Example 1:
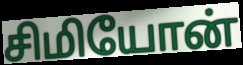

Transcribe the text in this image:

சிமியோன்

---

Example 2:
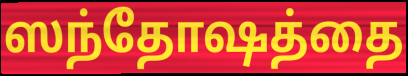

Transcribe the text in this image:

ஸந்தோஷத்தை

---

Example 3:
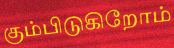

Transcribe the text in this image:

கும்பிடுகிறோம்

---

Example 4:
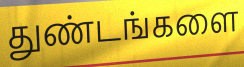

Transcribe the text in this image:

துண்டங்களை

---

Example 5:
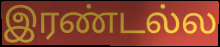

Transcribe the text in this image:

இரண்டல்ல